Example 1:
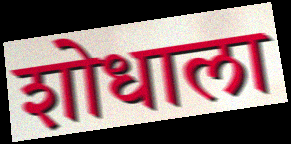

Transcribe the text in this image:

शोधाला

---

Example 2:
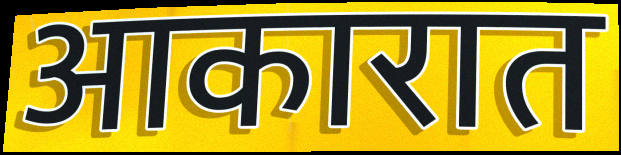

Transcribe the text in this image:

आकारात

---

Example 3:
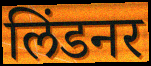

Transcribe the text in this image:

लिंडनर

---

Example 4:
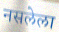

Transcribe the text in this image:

नसलेला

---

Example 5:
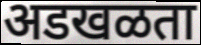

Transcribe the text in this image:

अडखळता